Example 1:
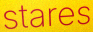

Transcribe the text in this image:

stares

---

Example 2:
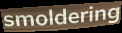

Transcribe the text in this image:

smoldering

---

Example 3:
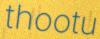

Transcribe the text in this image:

thootu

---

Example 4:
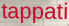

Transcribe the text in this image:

tappati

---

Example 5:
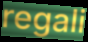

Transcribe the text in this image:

regali